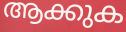
ആക്കുക